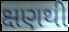
ક્ષણથી